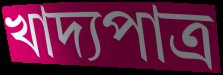
খাদ্যপাত্র